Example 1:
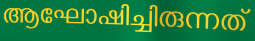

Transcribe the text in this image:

ആഘോഷിച്ചിരുന്നത്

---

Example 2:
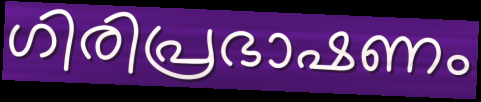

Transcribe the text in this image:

ഗിരിപ്രഭാഷണം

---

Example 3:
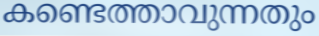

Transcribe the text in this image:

കണ്ടെത്താവുന്നതും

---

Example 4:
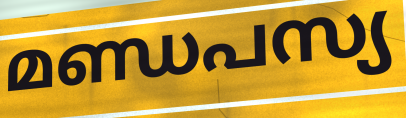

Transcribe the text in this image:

മണ്ഡപസ്യ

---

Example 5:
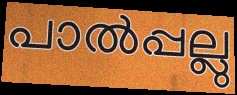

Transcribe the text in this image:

പാൽപ്പല്ലു